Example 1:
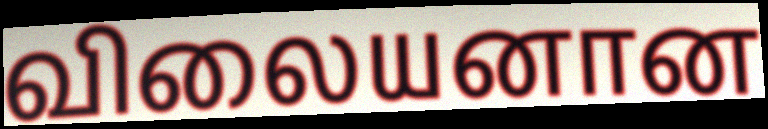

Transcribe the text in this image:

விலையனான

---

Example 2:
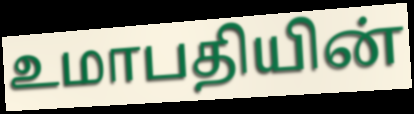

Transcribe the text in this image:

உமாபதியின்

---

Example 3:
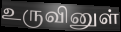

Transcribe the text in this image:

உருவினுள்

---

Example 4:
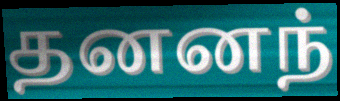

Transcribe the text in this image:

தனனந்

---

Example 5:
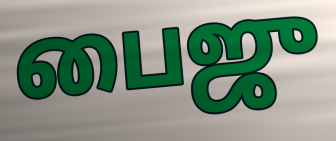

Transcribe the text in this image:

பைஜு